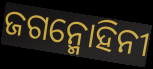
ଜଗନ୍ମୋହିନୀ